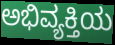
ಅಭಿವ್ಯಕ್ತಿಯ